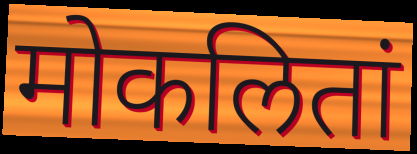
मोकलितां